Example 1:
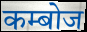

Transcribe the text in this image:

कम्बोज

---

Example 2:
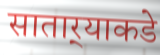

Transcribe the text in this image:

सातार्याकडे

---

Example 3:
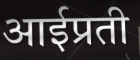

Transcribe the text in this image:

आईप्रती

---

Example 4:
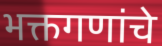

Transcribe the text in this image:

भक्तगणांचे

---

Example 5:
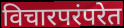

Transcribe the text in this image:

विचारपरंपरेत